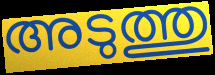
അടുത്തു